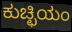
ಕುಚ್ಛಿಯಂ